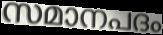
സമാനപദം